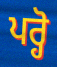
ਪਰ੍ਹੋ